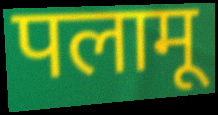
पलामू